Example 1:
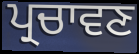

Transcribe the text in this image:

ਪ੍ਰਚਾਵਣ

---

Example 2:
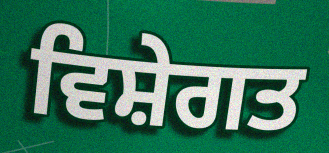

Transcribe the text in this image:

ਵਿਸ਼ੇਗਤ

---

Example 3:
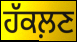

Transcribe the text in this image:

ਹੱਕਲ਼ਣ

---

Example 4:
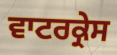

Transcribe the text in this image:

ਵਾਟਰਕ੍ਰੇਸ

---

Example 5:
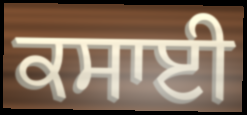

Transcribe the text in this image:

ਕਸਾਈ